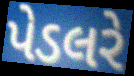
પેડલરે